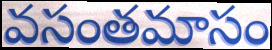
వసంతమాసం